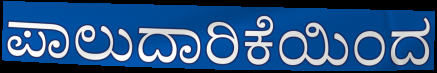
ಪಾಲುದಾರಿಕೆಯಿಂದ